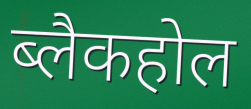
ब्लैकहोल